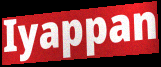
Iyappan